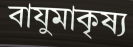
বাযুমাকৃষ্য